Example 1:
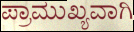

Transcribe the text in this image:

ಪ್ರಾಮುಖ್ಯವಾಗಿ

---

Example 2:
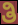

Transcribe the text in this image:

ತಿ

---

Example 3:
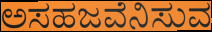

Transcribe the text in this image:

ಅಸಹಜವೆನಿಸುವ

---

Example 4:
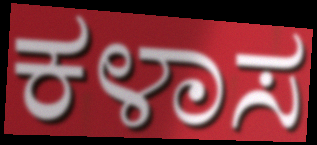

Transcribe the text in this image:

ಕಳಾಸ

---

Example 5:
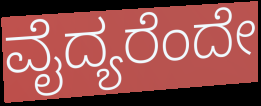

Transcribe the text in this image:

ವೈದ್ಯರೆಂದೇ